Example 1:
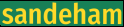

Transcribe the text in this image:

sandeham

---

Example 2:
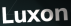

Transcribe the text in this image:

Luxon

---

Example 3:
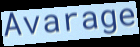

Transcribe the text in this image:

Avarage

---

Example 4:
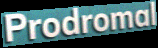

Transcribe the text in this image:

Prodromal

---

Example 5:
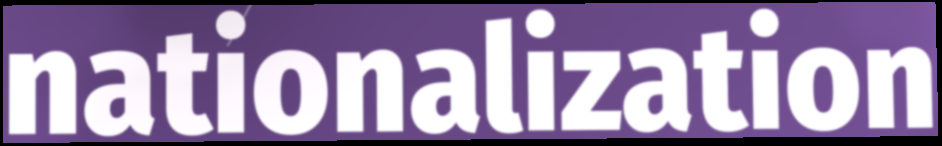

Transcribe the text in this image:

nationalization